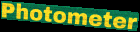
Photometer